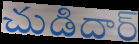
చుడిదార్